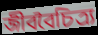
জীববৈচিত্র্য